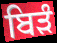
ਬਿੜੰ